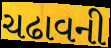
ચઢાવની